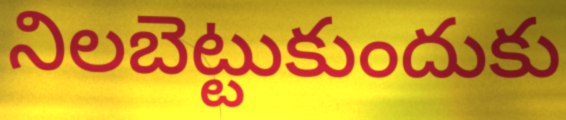
నిలబెట్టుకుందుకు